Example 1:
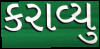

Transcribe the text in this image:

કરાવ્યુ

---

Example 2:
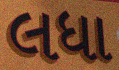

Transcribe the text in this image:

લધા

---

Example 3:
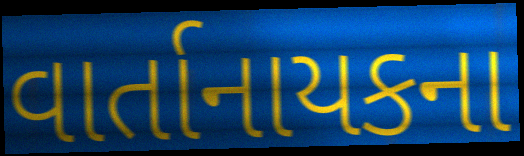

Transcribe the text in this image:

વાર્તાનાયકના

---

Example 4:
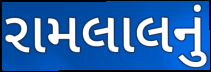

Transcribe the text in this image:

રામલાલનું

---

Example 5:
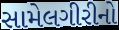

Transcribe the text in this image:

સામેલગીરીનો